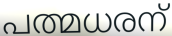
പത്മധരന്